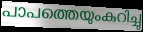
പാപത്തെയുംകുറിച്ചു